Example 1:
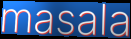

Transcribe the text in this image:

masala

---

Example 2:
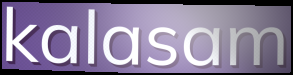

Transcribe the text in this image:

kalasam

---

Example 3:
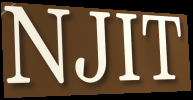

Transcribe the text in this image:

NJIT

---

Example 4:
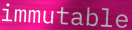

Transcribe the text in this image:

immutable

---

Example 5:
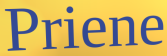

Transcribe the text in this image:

Priene